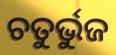
ଚତୁର୍ଭୁଜ